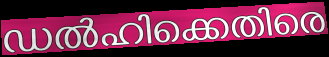
ഡൽഹിക്കെതിരെ